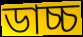
ডাচ্চ